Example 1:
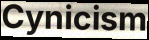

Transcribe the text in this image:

Cynicism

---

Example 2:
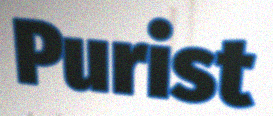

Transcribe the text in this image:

Purist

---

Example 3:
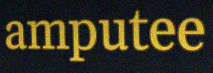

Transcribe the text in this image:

amputee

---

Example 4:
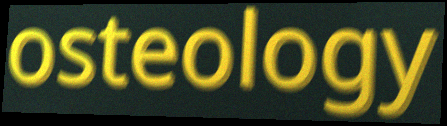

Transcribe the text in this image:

osteology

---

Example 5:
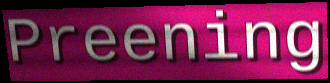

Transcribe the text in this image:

Preening